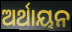
ଅର୍ଥାୟନ